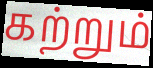
கற்றும்